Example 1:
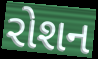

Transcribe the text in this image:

રોશન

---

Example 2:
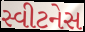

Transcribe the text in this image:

સ્વીટનેસ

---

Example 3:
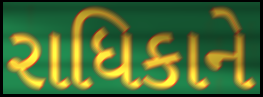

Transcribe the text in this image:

રાધિકાને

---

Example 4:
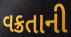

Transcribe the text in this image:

વક્રતાની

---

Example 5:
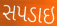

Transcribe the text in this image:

સપડાઇ